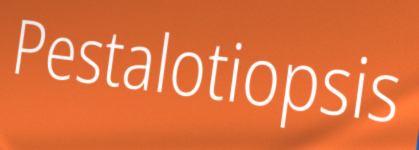
Pestalotiopsis